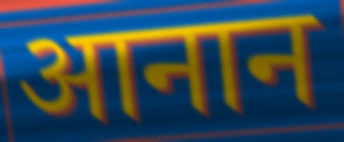
आनान